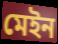
মেইন